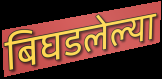
बिघडलेल्या